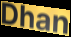
Dhan